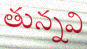
తున్నవి